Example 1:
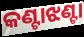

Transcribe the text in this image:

କଣ୍ଟାଝଣ୍ଟା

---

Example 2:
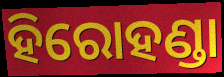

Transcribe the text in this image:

ହିରୋହଣ୍ଡା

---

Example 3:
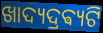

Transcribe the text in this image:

ଖାଦ୍ୟଦ୍ରଵ୍ୟଟି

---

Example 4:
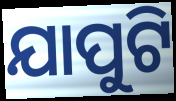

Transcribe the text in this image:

ଯାପୁଟି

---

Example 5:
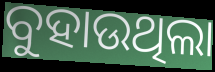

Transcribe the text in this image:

ବୁହାଉଥିଲା